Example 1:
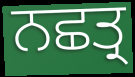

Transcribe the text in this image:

ਨਛਤ੍ਰ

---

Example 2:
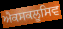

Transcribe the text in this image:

ਐਕਸਕਲੂਸਿਵ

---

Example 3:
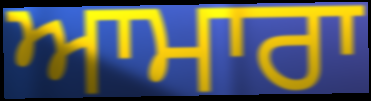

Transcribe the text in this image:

ਆਮਾਰਾ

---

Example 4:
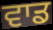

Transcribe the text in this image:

ਵਾਡ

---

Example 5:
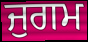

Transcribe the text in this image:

ਜੁਗਮ